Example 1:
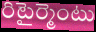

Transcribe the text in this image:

రిటైర్మెంటు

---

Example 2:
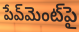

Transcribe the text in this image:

పేవ్‌మెంట్‌పై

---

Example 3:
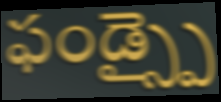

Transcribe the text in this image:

ఫండ్స్పై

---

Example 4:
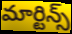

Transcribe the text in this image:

మార్టిన్స్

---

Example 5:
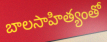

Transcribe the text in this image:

బాలసాహిత్యంతో